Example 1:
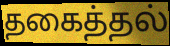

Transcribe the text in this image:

தகைத்தல்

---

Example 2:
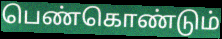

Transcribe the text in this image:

பெண்கொண்டும்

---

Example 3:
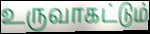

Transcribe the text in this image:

உருவாகட்டும்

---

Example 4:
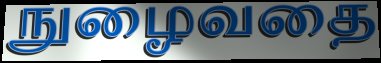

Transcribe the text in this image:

நுழைவதை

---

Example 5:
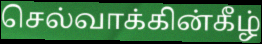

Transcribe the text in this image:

செல்வாக்கின்கீழ்